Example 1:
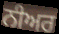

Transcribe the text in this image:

ਨੀਅਰ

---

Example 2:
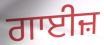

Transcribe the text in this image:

ਗਾਈਜ਼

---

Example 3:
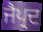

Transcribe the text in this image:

ਜੈਪ੍ਰਦ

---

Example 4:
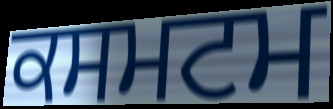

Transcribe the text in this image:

ਕਸਮਟਮ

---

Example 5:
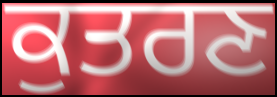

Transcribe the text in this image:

ਕੁਤਰਣ